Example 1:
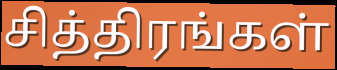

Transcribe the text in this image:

சித்திரங்கள்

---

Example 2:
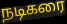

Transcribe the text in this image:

நடிகரை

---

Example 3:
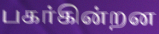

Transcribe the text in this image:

பகர்கின்றன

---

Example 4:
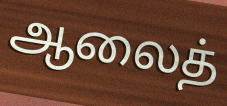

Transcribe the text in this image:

ஆலைத்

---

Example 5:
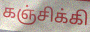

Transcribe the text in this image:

கஞ்சிக்கி